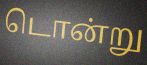
டொன்று